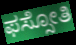
ಫಸ್ಸೋತಿ